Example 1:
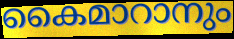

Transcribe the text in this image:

കൈമാറാനും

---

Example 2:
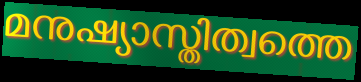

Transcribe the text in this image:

മനുഷ്യാസ്തിത്വത്തെ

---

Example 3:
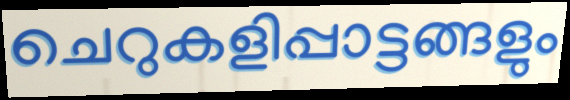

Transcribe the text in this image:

ചെറുകളിപ്പാട്ടങ്ങളും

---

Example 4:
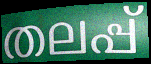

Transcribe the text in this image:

തലപ്പ്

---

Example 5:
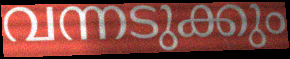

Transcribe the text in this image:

വന്നടുക്കും